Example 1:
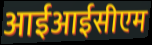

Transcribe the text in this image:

आईआईसीएम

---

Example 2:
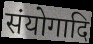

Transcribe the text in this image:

संयोगादि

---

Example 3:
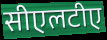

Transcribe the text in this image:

सीएलटीए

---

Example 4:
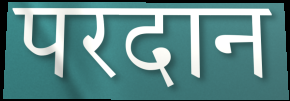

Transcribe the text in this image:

परदान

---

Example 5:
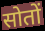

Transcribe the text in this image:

सोतों